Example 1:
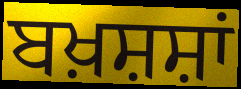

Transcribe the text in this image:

ਬਖ਼ਸ਼ਸ਼ਾਂ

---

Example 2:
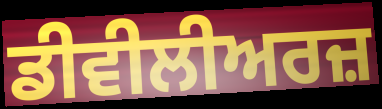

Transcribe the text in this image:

ਡੀਵੀਲੀਅਰਜ਼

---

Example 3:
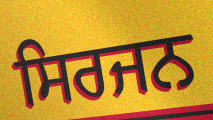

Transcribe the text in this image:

ਸਿਰਜਨ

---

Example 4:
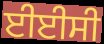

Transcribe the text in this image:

ਈਈਸੀ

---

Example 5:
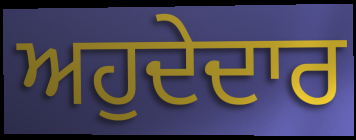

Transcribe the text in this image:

ਅਹੁਦੇਦਾਰ